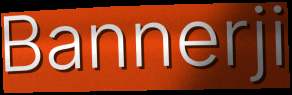
Bannerji